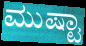
ಮುಷ್ಟಾ